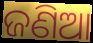
ଜଣିଆ